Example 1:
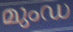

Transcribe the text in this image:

മുംഡ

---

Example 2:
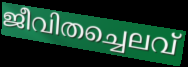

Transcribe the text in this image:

ജീവിതച്ചെലവ്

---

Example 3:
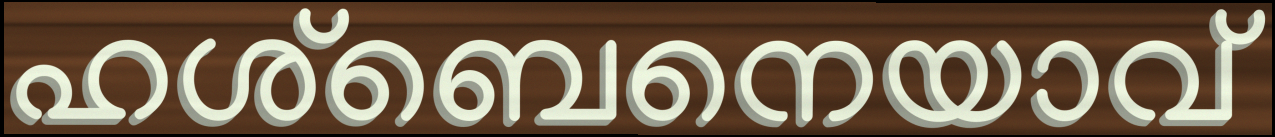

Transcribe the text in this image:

ഹശ്ബെനെയാവ്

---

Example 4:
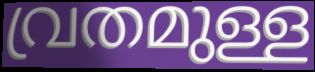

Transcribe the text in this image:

വ്രതമുള്ള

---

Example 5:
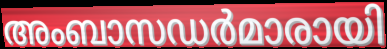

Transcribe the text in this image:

അംബാസഡർമാരായി